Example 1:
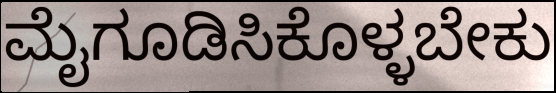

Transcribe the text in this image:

ಮೈಗೂಡಿಸಿಕೊಳ್ಳಬೇಕು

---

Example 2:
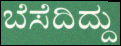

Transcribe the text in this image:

ಬೆಸೆದಿದ್ದು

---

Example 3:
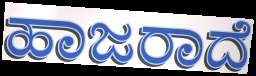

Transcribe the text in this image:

ಹಾಜರಾದೆ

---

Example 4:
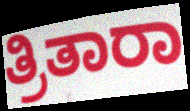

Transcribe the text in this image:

ತ್ರಿತಾರಾ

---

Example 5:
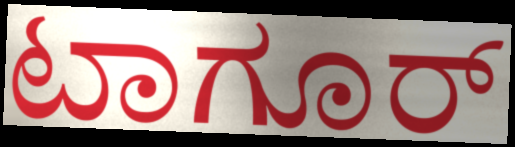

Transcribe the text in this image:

ಟಾಗೂರ್